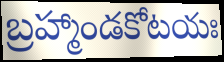
బ్రహ్మాండకోటయః